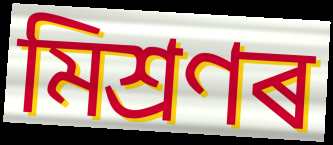
মিশ্ৰণৰ